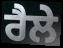
ਰੈਲੇ